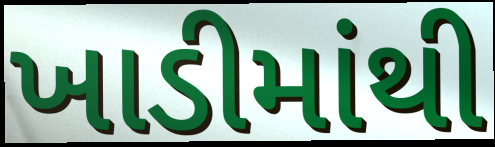
ખાડીમાંથી